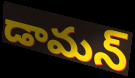
డామన్